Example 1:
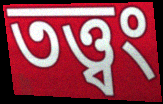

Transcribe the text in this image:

তত্ত্বং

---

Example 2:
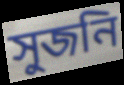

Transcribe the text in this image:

সুজনি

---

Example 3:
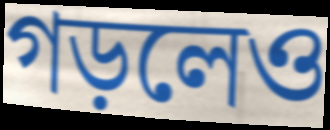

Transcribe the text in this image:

গড়লেও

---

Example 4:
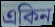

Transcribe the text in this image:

একিন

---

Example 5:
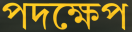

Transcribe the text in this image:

পদক্ষেপ